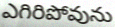
ఎగిరిపోవును